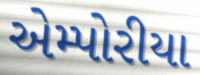
એમ્પોરીયા